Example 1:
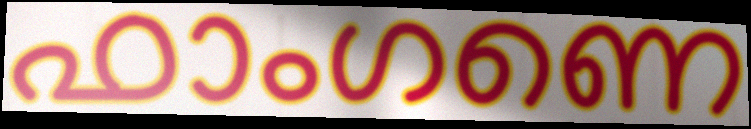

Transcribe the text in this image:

ഫാംഗണെ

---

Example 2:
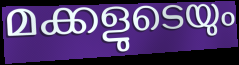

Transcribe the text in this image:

മക്കളുടെയും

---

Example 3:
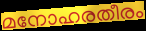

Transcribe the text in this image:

മനോഹരതീരം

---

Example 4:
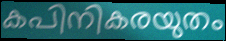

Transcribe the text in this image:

കപിനികരയുതം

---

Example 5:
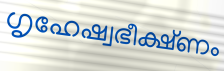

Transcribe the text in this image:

ഗൃഹേഷ്വഭീക്ഷ്ണം